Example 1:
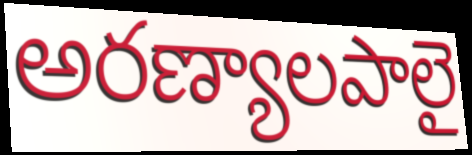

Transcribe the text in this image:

అరణ్యాలపాలై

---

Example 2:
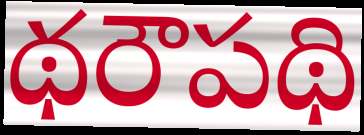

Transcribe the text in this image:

థరౌపథి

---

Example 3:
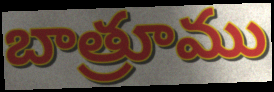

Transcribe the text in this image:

బాత్రూము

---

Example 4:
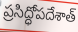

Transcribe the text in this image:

ప్రసిద్ధోపదేశాత్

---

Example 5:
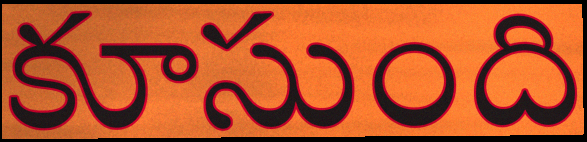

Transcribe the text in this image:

కూసుంది